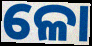
ଳୋ